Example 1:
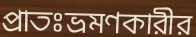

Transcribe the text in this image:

প্রাতঃভ্রমণকারীর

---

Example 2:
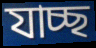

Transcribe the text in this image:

যাচ্ছ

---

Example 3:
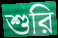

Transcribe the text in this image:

শুরি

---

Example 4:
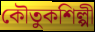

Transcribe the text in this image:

কৌতুকশিল্পী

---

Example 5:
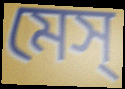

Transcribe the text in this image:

মেস্